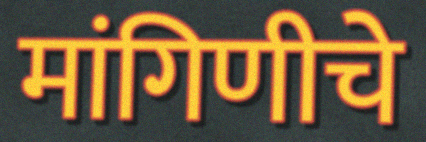
मांगिणीचे